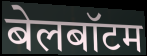
बेलबॉटम